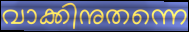
വാക്കിനുതന്നെ